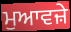
ਮੁਆਵਜ਼ੇ